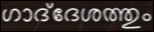
ഗാദ്‌ദേശത്തും